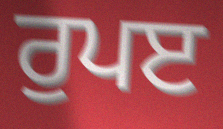
ਰੁਪੲ